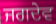
ਜਗਦੇਵ